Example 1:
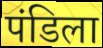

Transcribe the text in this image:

पंडिला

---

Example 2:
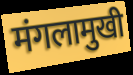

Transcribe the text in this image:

मंगलामुखी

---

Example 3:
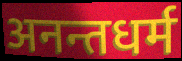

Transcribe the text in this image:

अनन्तधर्म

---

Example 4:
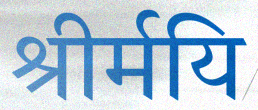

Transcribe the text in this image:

श्रीर्मयि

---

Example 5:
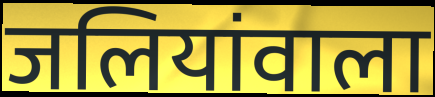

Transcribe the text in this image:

जलियांवाला